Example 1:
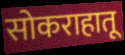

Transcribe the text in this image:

सोकराहातू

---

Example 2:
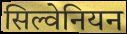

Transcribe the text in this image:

सिल्वेनियन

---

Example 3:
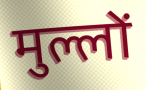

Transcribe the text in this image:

मुल्लों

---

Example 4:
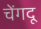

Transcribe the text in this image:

चेंगदू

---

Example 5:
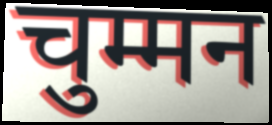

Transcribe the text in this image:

चुम्मन